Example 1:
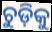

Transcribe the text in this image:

ଚୁଡ଼ିକୁ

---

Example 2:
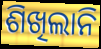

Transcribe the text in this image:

ଶିଖିଲାନି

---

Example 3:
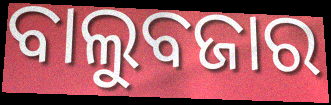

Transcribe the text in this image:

ବାଲୁବଜାର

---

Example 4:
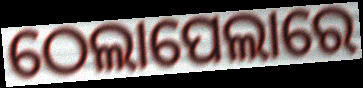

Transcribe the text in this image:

ଠେଲାପେଲାରେ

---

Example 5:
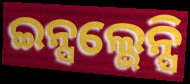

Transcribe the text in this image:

ଇନ୍ସଲ୍ଭେନ୍ସି